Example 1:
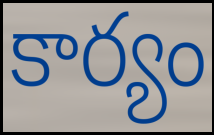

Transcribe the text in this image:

కార్యం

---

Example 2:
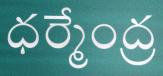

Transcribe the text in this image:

ధర్మేంద్ర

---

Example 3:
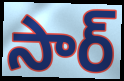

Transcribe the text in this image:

సార్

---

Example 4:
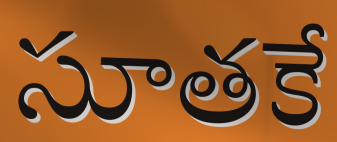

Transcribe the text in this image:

సూతకే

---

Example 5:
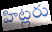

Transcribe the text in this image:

హిట్లరు